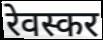
रेवस्कर